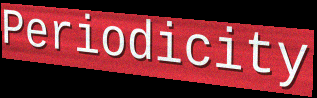
Periodicity